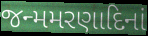
જન્મમરણાદિનાં